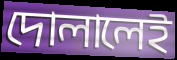
দোলালেই